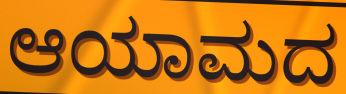
ಆಯಾಮದ